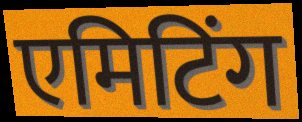
एमिटिंग